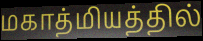
மகாத்மியத்தில்